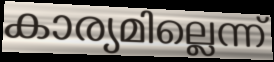
കാര്യമില്ലെന്ന്